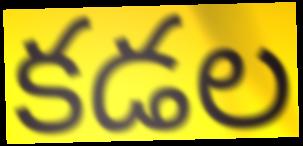
కడల